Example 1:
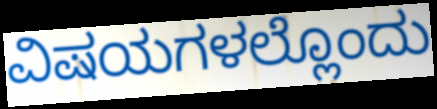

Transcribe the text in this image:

ವಿಷಯಗಳಲ್ಲೊಂದು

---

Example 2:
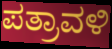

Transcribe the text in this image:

ಪತ್ರಾವಳಿ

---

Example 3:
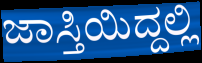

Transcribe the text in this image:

ಜಾಸ್ತಿಯಿದ್ದಲ್ಲಿ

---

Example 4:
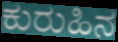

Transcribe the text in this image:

ಕುರುಹಿನ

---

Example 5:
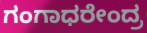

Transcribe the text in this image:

ಗಂಗಾಧರೇಂದ್ರ